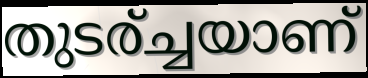
തുടര്ച്ചയാണ്